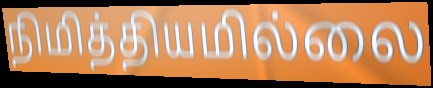
நிமித்தியமில்லை